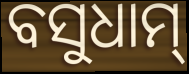
ବସୁଧାମ୍